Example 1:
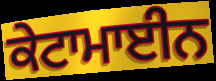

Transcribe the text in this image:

ਕੇਟਾਮਾਈਨ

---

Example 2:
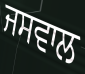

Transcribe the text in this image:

ਜਸਵਾਲ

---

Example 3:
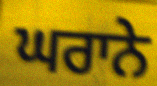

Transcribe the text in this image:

ਘਰਾਨੇ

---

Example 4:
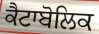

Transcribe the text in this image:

ਕੈਟਾਬੋਲਿਕ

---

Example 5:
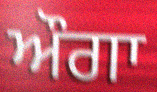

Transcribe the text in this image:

ਔਗਾ